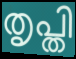
തൃപ്തി